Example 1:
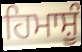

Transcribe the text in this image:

ਹਿਮਾਸ਼ੂੰ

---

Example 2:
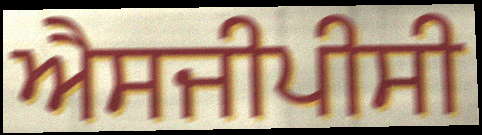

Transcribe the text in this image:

ਐਸਜੀਪੀਸੀ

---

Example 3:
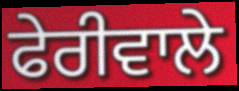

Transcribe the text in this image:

ਫੇਰੀਵਾਲੇ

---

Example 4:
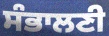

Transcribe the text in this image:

ਸੰਭਾਲਣੀ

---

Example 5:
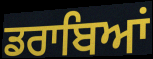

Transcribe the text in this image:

ਡਰਾਬਿਆਂ